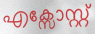
എക്സോസ്റ്റ്